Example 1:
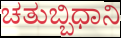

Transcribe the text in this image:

ಚತುಬ್ಬಿಧಾನಿ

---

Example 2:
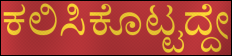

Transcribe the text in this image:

ಕಲಿಸಿಕೊಟ್ಟದ್ದೇ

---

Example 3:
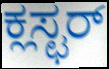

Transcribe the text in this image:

ಕ್ಲಸ್ಟರ್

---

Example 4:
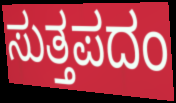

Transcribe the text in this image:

ಸುತ್ತಪದಂ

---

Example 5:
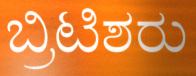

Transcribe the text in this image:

ಬ್ರಿಟಿಶರು